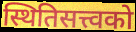
स्थितिसत्त्वको